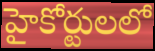
హైకోర్టులలో